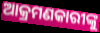
ଆକ୍ରମଣକାରୀଙ୍କୁ